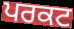
ਪਰਕਟ